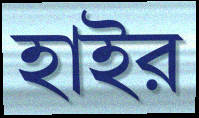
হাইর